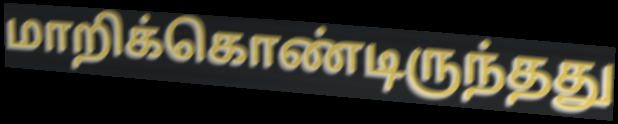
மாறிக்கொண்டிருந்தது